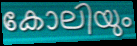
കോലിയും